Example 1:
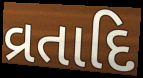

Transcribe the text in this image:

વ્રતાદિ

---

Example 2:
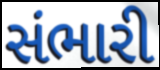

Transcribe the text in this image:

સંભારી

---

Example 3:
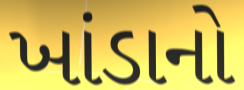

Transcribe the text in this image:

ખાંડાનો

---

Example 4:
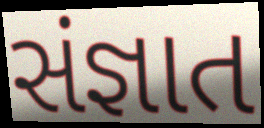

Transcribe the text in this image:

સંજ્ઞાત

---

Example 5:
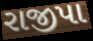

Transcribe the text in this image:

રાજીપા